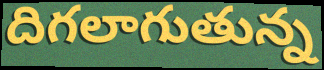
దిగలాగుతున్న